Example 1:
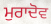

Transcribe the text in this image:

ਮੁਰਾਦੋਵ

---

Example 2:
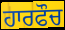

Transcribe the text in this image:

ਹਾਰਫੌਚ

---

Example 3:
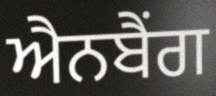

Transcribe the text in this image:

ਐਨਬੈਂਗ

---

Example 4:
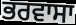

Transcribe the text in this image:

ਭਰਵਾਸਾ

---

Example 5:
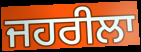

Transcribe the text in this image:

ਜਹਰੀਲਾ